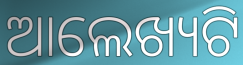
ଆଲେଖ୍ୟଟି